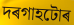
দৰগাহটোৰ